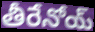
తీరేనోయ్